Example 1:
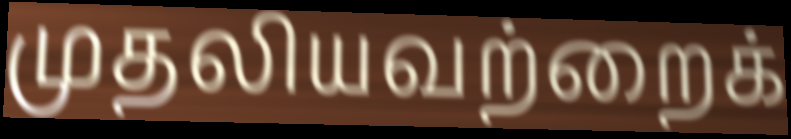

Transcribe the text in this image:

முதலியவற்றைக்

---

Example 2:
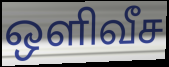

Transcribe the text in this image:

ஒளிவீச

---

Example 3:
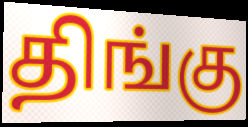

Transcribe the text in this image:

திங்கு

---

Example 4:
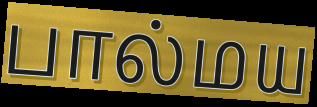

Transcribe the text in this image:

பால்மய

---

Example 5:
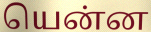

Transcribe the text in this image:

யென்ன